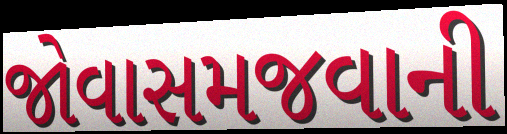
જોવાસમજવાની